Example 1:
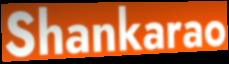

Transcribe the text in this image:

Shankarao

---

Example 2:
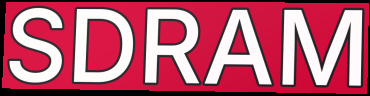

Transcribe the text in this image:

SDRAM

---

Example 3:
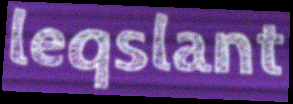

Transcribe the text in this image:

leqslant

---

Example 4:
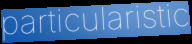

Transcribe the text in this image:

particularistic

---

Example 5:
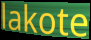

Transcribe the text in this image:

lakote